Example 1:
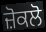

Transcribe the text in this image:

ਜ਼ੋਕਲੋ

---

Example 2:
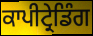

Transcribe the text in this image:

ਕਾਪੀਟ੍ਰੇਡਿੰਗ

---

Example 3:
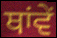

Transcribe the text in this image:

ਥਾਂਵੇਂ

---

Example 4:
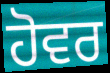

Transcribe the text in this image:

ਹੋਵਰ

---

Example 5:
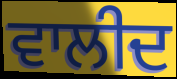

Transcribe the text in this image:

ਵਾਲੀਦ